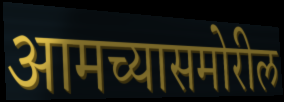
आमच्यासमोरील